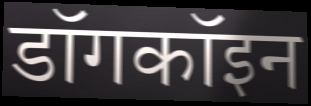
डॉगकॉइन